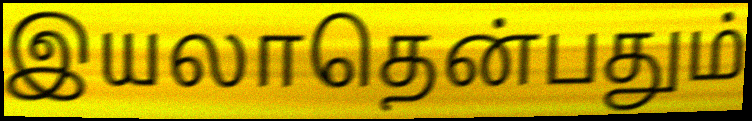
இயலாதென்பதும்